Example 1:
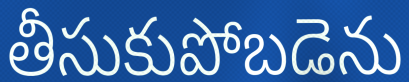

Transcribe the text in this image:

తీసుకుపోబడెను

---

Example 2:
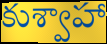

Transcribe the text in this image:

కుశ్వాహా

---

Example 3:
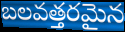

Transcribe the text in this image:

బలవత్తరమైన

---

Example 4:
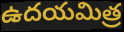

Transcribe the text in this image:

ఉదయమిత్ర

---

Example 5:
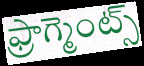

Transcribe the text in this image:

ఫ్రాగ్మెంట్స్